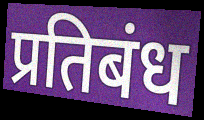
प्रतिबंध